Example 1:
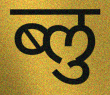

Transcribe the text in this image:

ब्लु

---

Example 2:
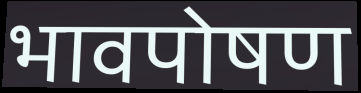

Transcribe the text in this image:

भावपोषण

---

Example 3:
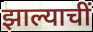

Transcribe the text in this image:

झाल्याचीं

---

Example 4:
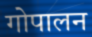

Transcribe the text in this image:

गोपालन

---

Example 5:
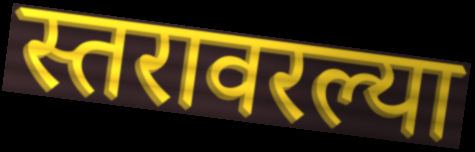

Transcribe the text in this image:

स्तरावरल्या